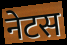
नेटस